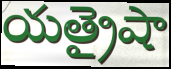
యత్రైషా